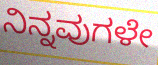
ನಿನ್ನವುಗಳೇ